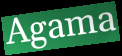
Agama